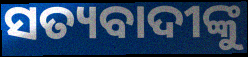
ସତ୍ୟବାଦୀଙ୍କୁ